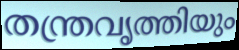
തന്ത്രവൃത്തിയും